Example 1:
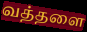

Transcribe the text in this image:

வத்தளை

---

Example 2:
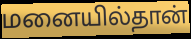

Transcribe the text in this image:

மனையில்தான்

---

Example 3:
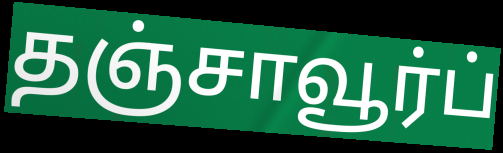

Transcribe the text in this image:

தஞ்சாவூர்ப்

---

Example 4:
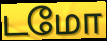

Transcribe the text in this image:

டமோ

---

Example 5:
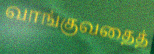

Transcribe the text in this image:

வாங்குவதைத்